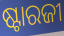
ଷ୍ଟାରଜୀ